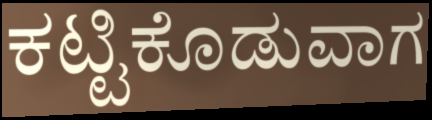
ಕಟ್ಟಿಕೊಡುವಾಗ